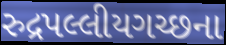
રુદ્રપલ્લીયગચ્છના